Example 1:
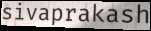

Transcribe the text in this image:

sivaprakash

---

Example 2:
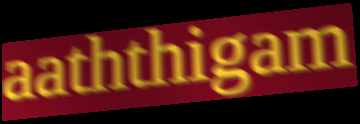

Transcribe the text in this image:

aaththigam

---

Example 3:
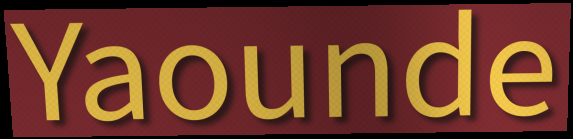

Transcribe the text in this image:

Yaounde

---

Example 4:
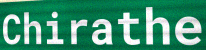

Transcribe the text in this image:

Chirathe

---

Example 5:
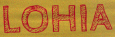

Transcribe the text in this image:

LOHIA